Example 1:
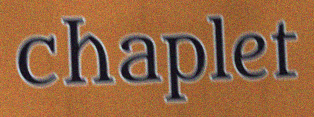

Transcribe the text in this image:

chaplet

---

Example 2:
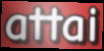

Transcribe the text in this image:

attai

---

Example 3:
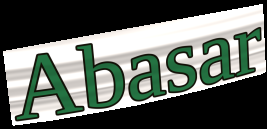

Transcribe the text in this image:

Abasar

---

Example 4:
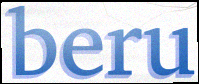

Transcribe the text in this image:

beru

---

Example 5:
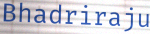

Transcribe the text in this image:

Bhadriraju